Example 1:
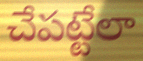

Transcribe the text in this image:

చేపట్టేలా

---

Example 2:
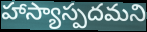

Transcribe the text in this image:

హాస్యాస్పదమని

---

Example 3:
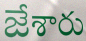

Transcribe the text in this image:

జేశారు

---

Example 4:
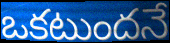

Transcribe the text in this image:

ఒకటుందనే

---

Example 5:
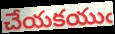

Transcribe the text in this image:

చేయకయుఁ